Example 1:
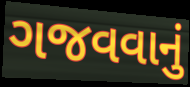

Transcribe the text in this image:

ગજવવાનું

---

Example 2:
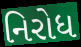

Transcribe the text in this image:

નિરોધ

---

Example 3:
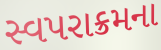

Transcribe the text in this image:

સ્વપરાક્રમના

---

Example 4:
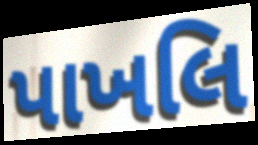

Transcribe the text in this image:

પાખલિ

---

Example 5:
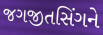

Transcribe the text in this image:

જગજીતસિંગને